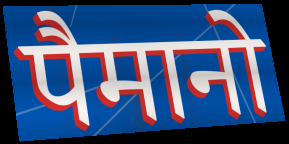
पैमानो